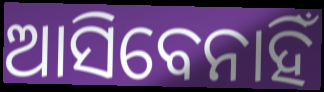
ଆସିବେନାହିଁ